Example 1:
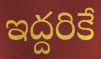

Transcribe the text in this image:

ఇద్దరికే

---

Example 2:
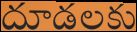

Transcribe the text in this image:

దూడలకు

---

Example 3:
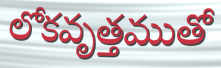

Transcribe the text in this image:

లోకవృత్తముతో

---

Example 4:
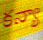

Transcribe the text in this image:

కన్యా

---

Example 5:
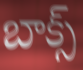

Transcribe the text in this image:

బాక్స్